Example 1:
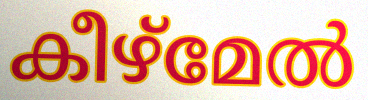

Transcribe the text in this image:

കീഴ്മേൽ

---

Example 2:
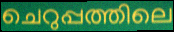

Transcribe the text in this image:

ചെറുപ്പത്തിലെ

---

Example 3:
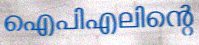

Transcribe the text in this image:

ഐപിഎലിന്റെ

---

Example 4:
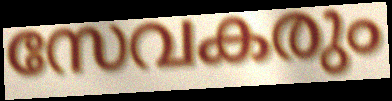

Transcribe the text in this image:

സേവകരും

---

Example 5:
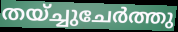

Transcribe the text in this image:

തയ്ച്ചുചേർത്തു